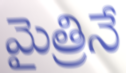
మైత్రినే